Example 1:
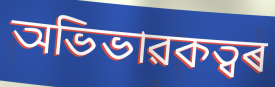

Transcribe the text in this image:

অভিভাৱকত্বৰ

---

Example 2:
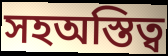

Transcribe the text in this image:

সহঅস্তিত্ব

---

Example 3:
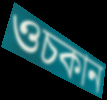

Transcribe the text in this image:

ওচকান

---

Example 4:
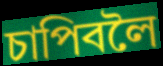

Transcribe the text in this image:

চাপিবলৈ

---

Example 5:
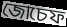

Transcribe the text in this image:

জোচেফ